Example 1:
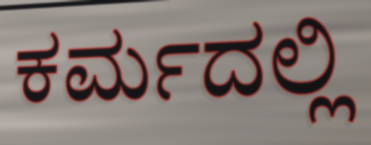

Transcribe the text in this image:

ಕರ್ಮದಲ್ಲಿ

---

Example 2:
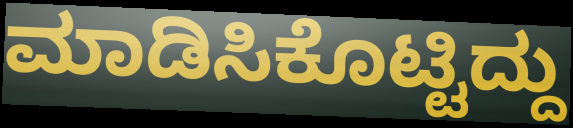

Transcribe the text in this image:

ಮಾಡಿಸಿಕೊಟ್ಟಿದ್ದು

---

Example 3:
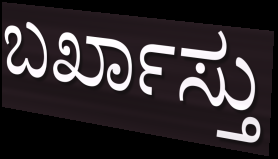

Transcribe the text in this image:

ಬರ್ಖಾಸ್ತು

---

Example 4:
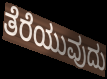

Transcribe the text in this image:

ತೆರೆಯುವುದು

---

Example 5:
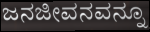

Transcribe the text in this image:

ಜನಜೀವನವನ್ನೂ